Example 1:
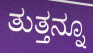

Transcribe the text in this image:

ತುತ್ತನ್ನೂ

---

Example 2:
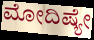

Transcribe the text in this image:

ಮೋದಿಷ್ಯೇ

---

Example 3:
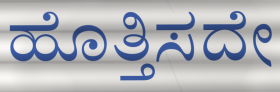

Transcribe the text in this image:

ಹೊತ್ತಿಸದೇ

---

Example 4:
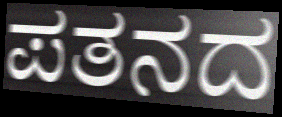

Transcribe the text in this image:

ಪತನದ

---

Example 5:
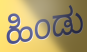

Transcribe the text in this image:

ಹಿಂಡು